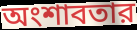
অংশাবতার